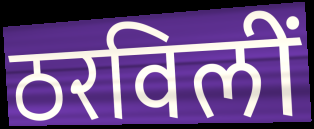
ठरविलीं